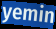
yemin